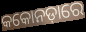
କକୋନଡ଼ାରେ